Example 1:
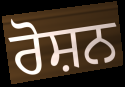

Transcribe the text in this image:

ਰੋਸ਼ਨ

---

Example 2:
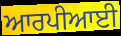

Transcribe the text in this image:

ਆਰਪੀਆਈ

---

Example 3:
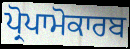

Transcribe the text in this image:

ਪ੍ਰੋਪਾਮੋਕਾਰਬ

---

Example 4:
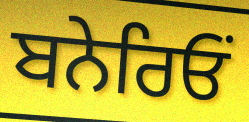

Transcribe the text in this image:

ਬਨੇਰਿਓਂ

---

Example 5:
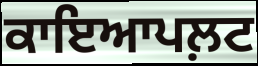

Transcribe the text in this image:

ਕਾਇਆਪਲ਼ਟ